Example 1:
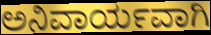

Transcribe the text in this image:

ಅನಿವಾರ್ಯವಾಗಿ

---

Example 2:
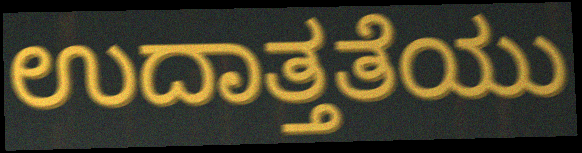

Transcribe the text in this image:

ಉದಾತ್ತತೆಯು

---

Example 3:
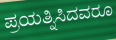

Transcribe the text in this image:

ಪ್ರಯತ್ನಿಸಿದವರೂ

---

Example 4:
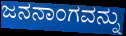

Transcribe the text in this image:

ಜನನಾಂಗವನ್ನು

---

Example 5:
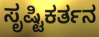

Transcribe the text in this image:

ಸೃಷ್ಟಿಕರ್ತನ